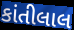
કાંતીલાલ